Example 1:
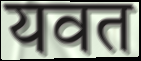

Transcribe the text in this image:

यवत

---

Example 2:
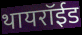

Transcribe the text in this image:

थायरॉईड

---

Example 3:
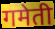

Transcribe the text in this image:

गमेती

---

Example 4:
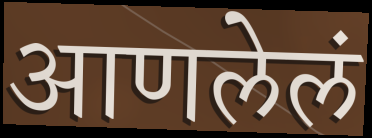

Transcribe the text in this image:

आणलेलं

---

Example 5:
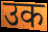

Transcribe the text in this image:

उक